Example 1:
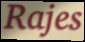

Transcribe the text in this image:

Rajes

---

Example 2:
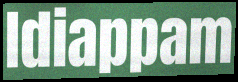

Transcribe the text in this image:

Idiappam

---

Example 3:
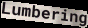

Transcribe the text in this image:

Lumbering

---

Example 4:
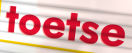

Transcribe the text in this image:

toetse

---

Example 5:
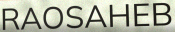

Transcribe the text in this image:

RAOSAHEB